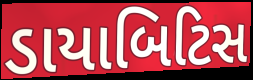
ડાયાબિટિસ